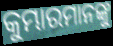
କୁମ୍ଭାରମାନଙ୍କୁ